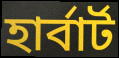
হাৰ্বাৰ্ট